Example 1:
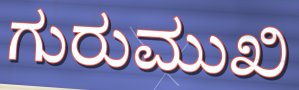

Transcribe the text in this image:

ಗುರುಮುಖಿ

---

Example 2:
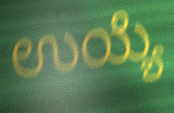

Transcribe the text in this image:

ಉಯ್ಯೆ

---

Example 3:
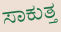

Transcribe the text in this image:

ಸಾಕುತ್ತ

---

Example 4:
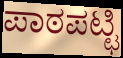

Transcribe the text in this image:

ಪಾಠಪಟ್ಟಿ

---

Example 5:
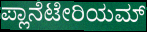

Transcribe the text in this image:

ಪ್ಲಾನೆಟೇರಿಯಮ್